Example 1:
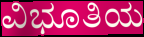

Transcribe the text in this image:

ವಿಭೂತಿಯ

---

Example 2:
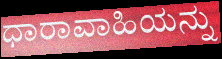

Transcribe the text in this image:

ಧಾರಾವಾಹಿಯನ್ನು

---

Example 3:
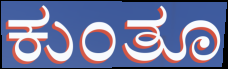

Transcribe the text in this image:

ಕುಂತೂ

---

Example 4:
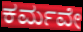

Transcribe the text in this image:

ಕರ್ಮವೇ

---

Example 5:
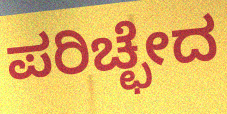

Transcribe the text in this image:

ಪರಿಚ್ಛೇದ